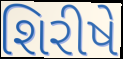
શિરીષે